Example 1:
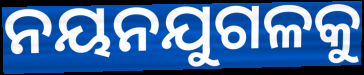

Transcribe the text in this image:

ନୟନଯୁଗଳକୁ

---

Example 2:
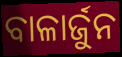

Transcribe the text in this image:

ବାଳାର୍ଜୁନ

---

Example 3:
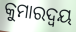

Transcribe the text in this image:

କୁମାରଦ୍ଵୟ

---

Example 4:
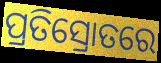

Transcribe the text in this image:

ପ୍ରତିସ୍ରୋତରେ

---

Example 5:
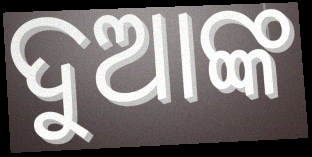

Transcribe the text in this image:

ଦୁଆଙ୍କ